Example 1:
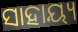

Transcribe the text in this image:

ସାହାୟ୍ୟ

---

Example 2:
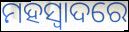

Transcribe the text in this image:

ମହସ୍ୱାଦରେ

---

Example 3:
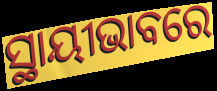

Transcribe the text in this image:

ସ୍ଥାୟୀଭାବରେ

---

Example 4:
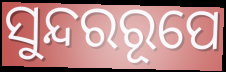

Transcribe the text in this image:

ସୁନ୍ଦରରୂପେ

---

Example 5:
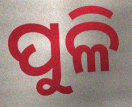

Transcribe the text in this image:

ପୁଳି